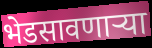
भेडसावणाऱ्या